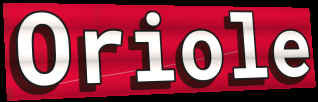
Oriole